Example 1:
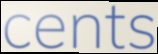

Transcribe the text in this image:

cents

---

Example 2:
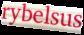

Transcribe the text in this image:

rybelsus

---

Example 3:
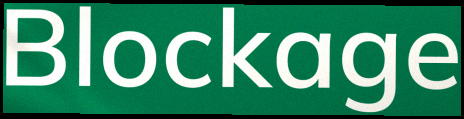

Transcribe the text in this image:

Blockage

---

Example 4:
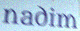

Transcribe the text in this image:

nadim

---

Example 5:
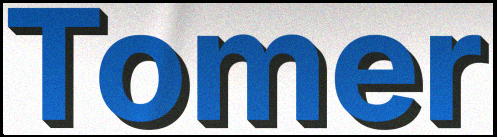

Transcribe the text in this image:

Tomer